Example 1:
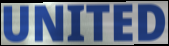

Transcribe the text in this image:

UNITED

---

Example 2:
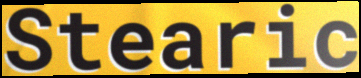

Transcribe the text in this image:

Stearic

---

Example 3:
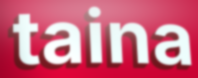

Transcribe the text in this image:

taina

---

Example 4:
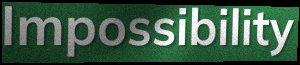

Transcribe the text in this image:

Impossibility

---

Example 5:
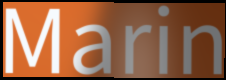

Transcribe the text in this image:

Marin